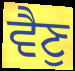
ਵੈਣੁ